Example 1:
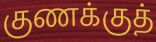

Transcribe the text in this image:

குணக்குத்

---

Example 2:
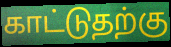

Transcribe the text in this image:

காட்டுதற்கு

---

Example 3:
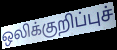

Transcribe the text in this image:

ஒலிக்குறிப்புச்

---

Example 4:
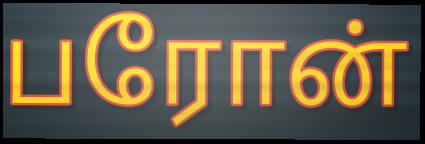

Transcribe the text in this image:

பரோன்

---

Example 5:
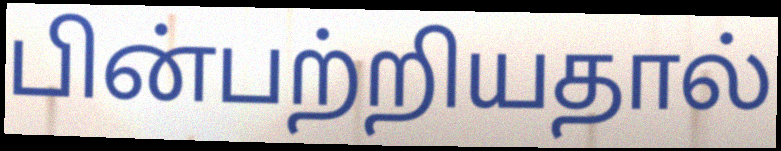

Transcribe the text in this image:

பின்பற்றியதால்